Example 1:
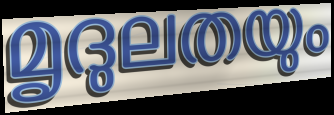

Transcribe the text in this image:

മൃദുലതയും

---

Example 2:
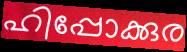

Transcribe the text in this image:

ഹിപ്പോക്കുര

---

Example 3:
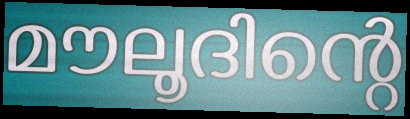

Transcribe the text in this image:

മൗലൂദിന്റെ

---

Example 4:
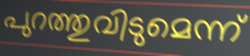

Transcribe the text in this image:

പുറത്തുവിടുമെന്ന്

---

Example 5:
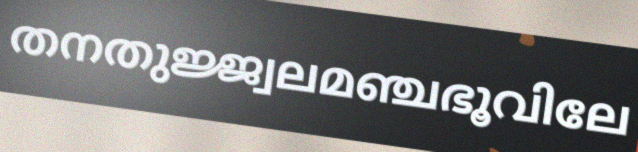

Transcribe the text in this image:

തനതുജ്ജ്വലമഞ്ചഭൂവിലേ